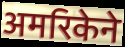
अमरिकेने